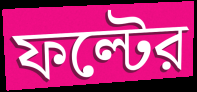
ফল্টের